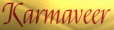
Karmaveer